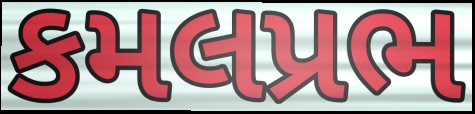
કમલપ્રભ